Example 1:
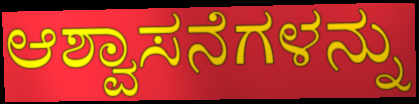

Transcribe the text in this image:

ಆಶ್ವಾಸನೆಗಳನ್ನು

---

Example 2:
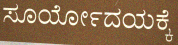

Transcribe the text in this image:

ಸೂರ್ಯೋದಯಕ್ಕೆ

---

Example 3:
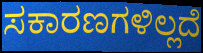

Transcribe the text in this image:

ಸಕಾರಣಗಳಿಲ್ಲದೆ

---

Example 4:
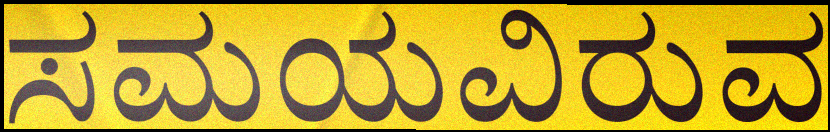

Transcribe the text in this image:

ಸಮಯವಿರುವ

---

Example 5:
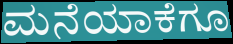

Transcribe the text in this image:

ಮನೆಯಾಕೆಗೂ